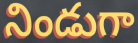
నిండుగా